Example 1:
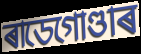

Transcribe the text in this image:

ৰাডেগোণ্ডাৰ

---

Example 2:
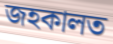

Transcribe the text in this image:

জহকালত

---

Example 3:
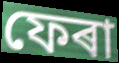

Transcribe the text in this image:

ফেৰা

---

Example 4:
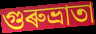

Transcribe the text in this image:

গুৰুভ্ৰাতা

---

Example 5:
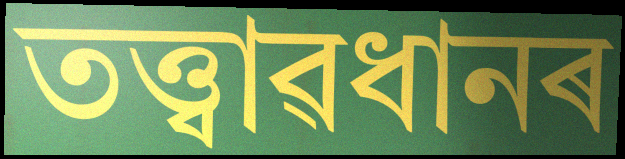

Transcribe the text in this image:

তত্ত্বাৱধানৰ